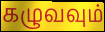
கழுவவும்